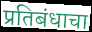
प्रतिबंधाचा